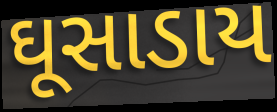
ઘૂસાડાય